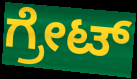
ಗ್ರೇಟ್